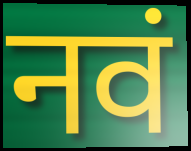
नवं